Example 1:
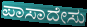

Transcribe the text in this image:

ಪಾಸಾದೇಸು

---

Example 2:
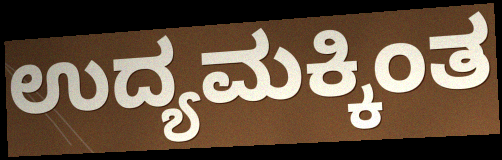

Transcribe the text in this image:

ಉದ್ಯಮಕ್ಕಿಂತ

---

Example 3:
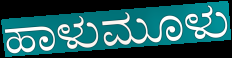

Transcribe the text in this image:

ಹಾಳುಮೂಳು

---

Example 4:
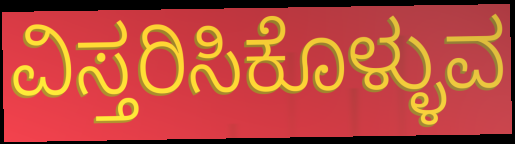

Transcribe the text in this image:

ವಿಸ್ತರಿಸಿಕೊಳ್ಳುವ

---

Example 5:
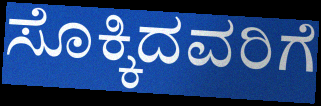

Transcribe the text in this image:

ಸೊಕ್ಕಿದವರಿಗೆ